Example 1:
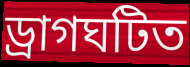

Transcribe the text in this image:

ড্রাগঘটিত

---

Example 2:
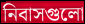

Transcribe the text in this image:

নিবাসগুলো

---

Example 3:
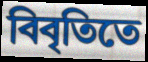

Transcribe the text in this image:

বিবৃতিতে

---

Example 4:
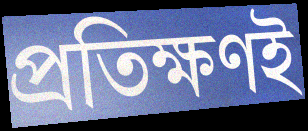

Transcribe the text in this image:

প্রতিক্ষণই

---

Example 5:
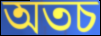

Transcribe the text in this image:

অতচ